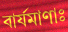
বার্যমাণাঃ